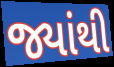
જ્યાંથી